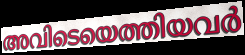
അവിടെയെത്തിയവർ